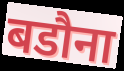
बडौना